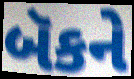
બૅકને